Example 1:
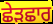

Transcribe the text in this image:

ਛੇੜਛਾਰ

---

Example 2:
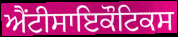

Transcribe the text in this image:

ਐਂਟੀਸਾਇਕੌਟਿਕਸ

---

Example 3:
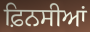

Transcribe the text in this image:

ਫ਼ਿਨਸੀਆਂ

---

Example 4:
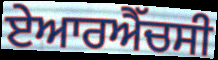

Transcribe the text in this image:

ਏਆਰਐੱਚਸੀ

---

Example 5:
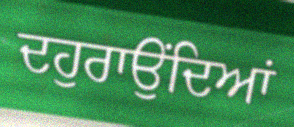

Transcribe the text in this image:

ਦਹੁਰਾਉਂਦਿਆਂ